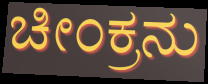
ಚೀಂಕ್ರನು